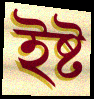
ইষ্ট